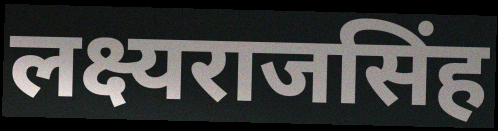
लक्ष्यराजसिंह